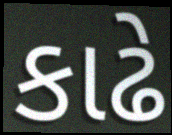
કાઢે